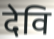
देवि